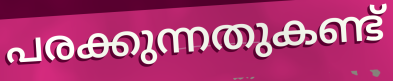
പരക്കുന്നതുകണ്ട്